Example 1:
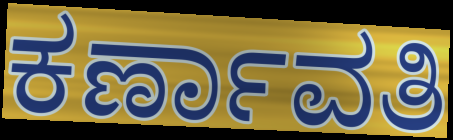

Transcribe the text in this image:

ಕರ್ಣಾವತಿ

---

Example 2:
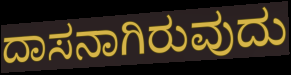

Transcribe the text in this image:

ದಾಸನಾಗಿರುವುದು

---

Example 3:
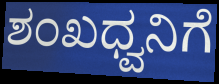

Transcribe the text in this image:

ಶಂಖಧ್ವನಿಗೆ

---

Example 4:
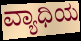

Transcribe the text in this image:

ವ್ಯಾಧಿಯ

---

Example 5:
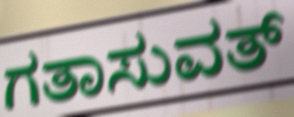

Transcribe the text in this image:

ಗತಾಸುವತ್